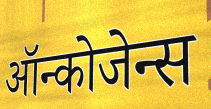
ऑन्कोजेन्स